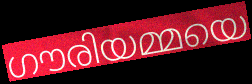
ഗൗരിയമ്മയെ